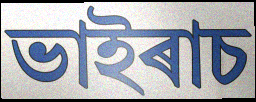
ভাইৰাচ